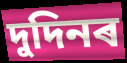
দুদিনৰ